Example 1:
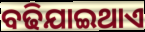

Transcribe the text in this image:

ବଢିଯାଇଥାଏ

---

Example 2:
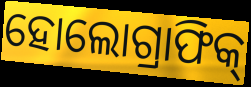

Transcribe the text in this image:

ହୋଲୋଗ୍ରାଫିକ୍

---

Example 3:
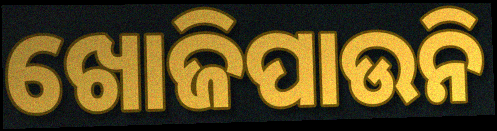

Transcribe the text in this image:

ଖୋଜିପାଉନି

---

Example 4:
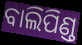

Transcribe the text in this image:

ବାଲିପିଣ୍ଡ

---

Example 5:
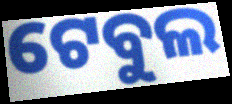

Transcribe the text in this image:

ଟେବୁଲ